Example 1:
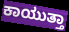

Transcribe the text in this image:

ಕಾಯುತ್ತಾ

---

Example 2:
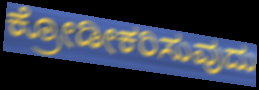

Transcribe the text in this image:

ಕ್ರೋಡೀಕರಿಸುವುದು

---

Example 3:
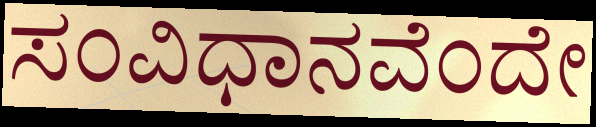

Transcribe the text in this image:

ಸಂವಿಧಾನವೆಂದೇ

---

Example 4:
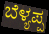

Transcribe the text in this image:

ಬೆಳ್ಯಪ್ಪ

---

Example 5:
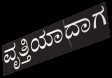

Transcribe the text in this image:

ವೃತ್ತಿಯಾದಾಗ